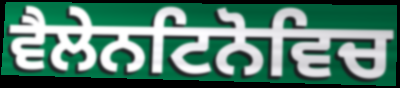
ਵੈਲੇਨਟਿਨੋਵਿਚ